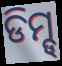
ଡିମ୍ଡ୍